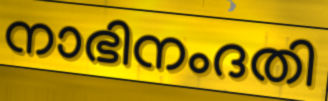
നാഭിനംദതി